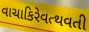
વાચાકિરેવત્થવતી